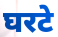
घरटे